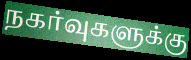
நகர்வுகளுக்கு